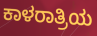
ಕಾಳರಾತ್ರಿಯ